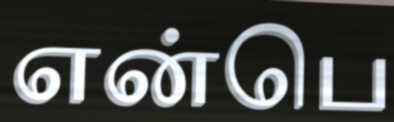
என்பெ